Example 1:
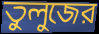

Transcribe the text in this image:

তুলুজের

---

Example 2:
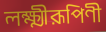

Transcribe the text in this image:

লক্ষ্মীরূপিণী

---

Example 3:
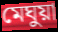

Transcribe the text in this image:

মেঘুয়া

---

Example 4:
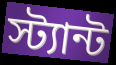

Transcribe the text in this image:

স্ট্যান্ট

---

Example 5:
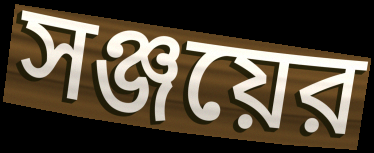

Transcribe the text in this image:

সঞ্জয়ের